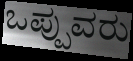
ಒಪ್ಪುವರು